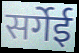
सर्गेई